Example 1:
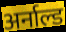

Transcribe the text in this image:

अर्नाल्ड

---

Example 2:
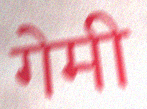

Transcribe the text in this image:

गेमी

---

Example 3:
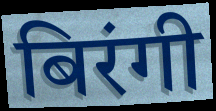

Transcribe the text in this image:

बिरंगी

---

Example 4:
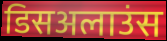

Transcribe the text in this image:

डिसअलाउंस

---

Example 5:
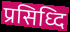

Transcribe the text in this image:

प्रसिध्दि